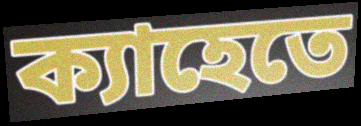
ক্যাহেতে